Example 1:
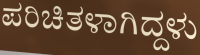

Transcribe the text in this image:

ಪರಿಚಿತಳಾಗಿದ್ದಳು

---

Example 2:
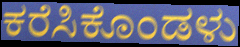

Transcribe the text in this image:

ಕರೆಸಿಕೊಂಡಳು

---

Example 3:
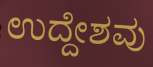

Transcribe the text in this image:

ಉದ್ದೇಶವು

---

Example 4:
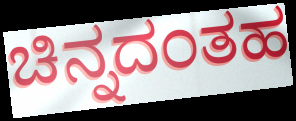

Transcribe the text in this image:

ಚಿನ್ನದಂತಹ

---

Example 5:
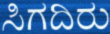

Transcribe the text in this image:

ಸಿಗದಿರು